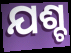
ଯଶ୍ଚ